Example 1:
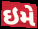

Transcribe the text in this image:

ઇમે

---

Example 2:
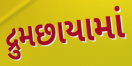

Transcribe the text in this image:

દ્રુમછાયામાં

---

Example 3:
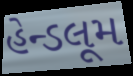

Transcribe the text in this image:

હેન્ડલૂમ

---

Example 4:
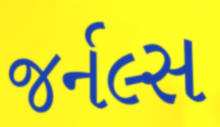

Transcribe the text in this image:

જર્નલ્સ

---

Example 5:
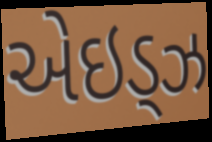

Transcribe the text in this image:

એઇડ્ઝ